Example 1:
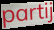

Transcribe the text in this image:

partij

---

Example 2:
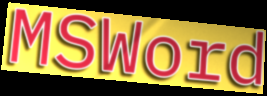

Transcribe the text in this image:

MSWord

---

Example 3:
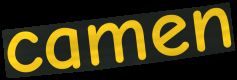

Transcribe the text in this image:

camen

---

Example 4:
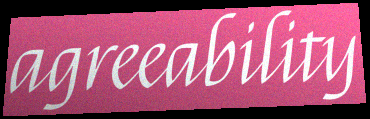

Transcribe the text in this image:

agreeability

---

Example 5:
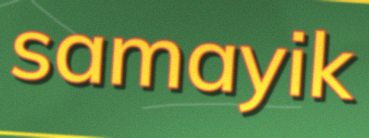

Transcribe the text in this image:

samayik